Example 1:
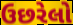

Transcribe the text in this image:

ઉછરેલો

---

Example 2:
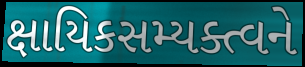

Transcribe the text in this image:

ક્ષાયિકસમ્યક્ત્વને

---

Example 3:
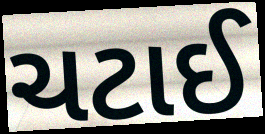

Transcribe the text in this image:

ચટાઈ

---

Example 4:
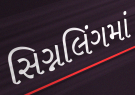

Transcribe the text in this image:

સિગ્નલિંગમાં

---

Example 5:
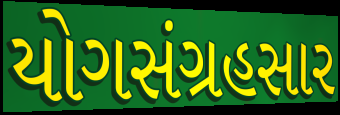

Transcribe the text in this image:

યોગસંગ્રહસાર